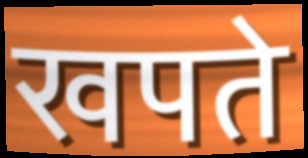
खपते